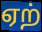
ஏற்